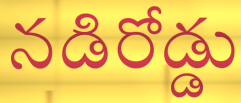
నడిరోడ్డు